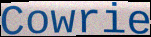
Cowrie